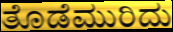
ತೊಡೆಮುರಿದು